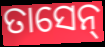
ତାସେନ୍